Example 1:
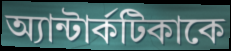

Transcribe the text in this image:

অ্যান্টার্কটিকাকে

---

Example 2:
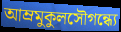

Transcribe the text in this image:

আম্রমুকুলসৌগন্ধ্যে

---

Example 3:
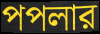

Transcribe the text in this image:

পপলার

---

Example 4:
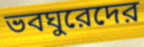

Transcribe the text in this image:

ভবঘুরেদের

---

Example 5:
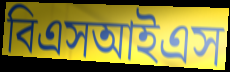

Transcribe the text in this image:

বিএসআইএস